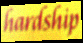
hardship